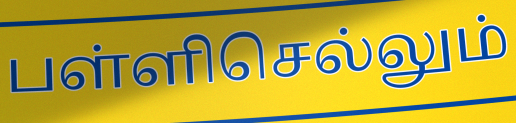
பள்ளிசெல்லும்